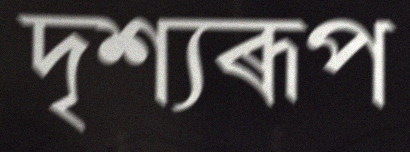
দৃশ্যৰূপ